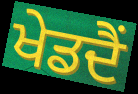
ਖੇਡਦੈਂ